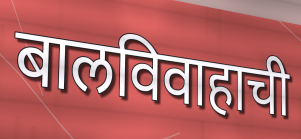
बालविवाहाची